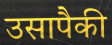
उसापैकी